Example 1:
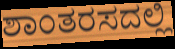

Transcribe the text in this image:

ಶಾಂತರಸದಲ್ಲಿ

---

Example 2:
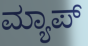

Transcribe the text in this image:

ಮ್ಯಾಪ್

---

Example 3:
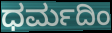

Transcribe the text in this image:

ಧರ್ಮದಿಂ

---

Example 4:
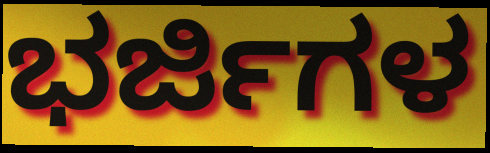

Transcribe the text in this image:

ಭರ್ಜಿಗಳ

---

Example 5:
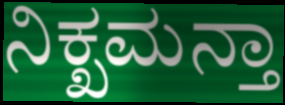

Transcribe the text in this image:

ನಿಕ್ಖಮನ್ತಾ